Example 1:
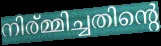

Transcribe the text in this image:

നിര്മ്മിച്ചതിന്റെ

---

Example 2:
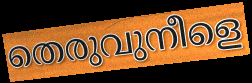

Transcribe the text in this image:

തെരുവുനീളെ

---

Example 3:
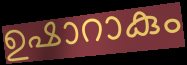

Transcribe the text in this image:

ഉഷാറാകും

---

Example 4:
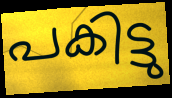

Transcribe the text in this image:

പകിട്ടു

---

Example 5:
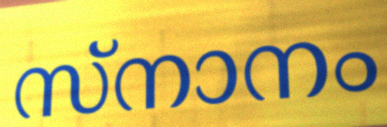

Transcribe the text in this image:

സ്നാനം